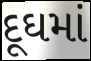
દૂઘમાં